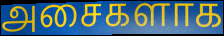
அசைகளாக